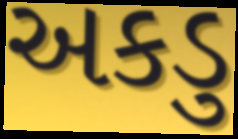
અકડુ